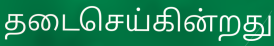
தடைசெய்கின்றது